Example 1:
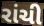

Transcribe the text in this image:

રાંચી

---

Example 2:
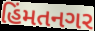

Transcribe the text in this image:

હિંમતનગર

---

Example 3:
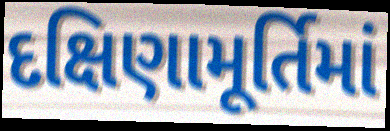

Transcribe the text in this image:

દક્ષિણામૂર્તિમાં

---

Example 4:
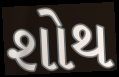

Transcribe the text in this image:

શોથ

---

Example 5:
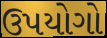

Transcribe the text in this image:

ઉપયોગો